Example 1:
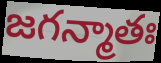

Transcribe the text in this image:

జగన్మాతః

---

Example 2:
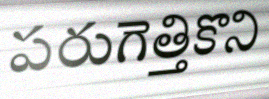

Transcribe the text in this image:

పరుగెత్తికొని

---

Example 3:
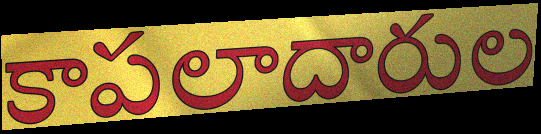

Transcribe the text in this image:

కాపలాదారుల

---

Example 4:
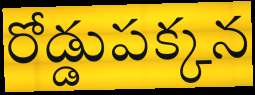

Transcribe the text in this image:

రోడ్డుపక్కన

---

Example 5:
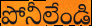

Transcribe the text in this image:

పోనీలేండి